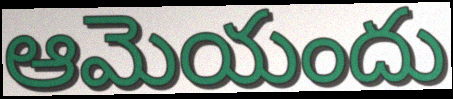
ఆమెయందు